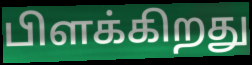
பிளக்கிறது